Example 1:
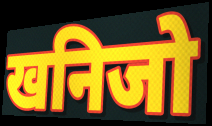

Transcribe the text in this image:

खनिजो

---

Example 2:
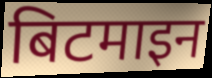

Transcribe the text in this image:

बिटमाइन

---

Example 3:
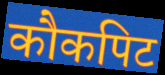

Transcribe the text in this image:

कौकपिट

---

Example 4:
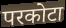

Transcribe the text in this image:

परकोटा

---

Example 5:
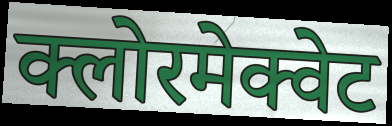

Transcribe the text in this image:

क्लोरमेक्वेट